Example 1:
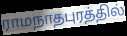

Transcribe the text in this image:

ராமநாதபுரத்தில்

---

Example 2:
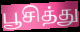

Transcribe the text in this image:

பூசித்து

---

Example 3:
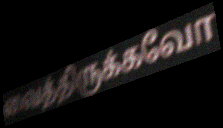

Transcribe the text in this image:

வைத்திருக்கவோ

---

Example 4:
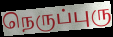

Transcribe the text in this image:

நெருப்புரு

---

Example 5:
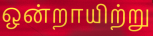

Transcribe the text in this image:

ஒன்றாயிற்று